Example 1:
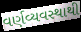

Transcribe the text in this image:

વર્ણવ્યવસ્થાથી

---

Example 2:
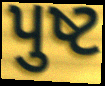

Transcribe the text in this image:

પુષ્ટ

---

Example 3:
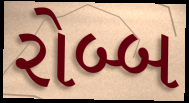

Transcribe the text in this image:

રોબ્બ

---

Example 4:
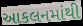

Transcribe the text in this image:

આકલનમાંથી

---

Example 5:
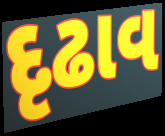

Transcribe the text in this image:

દૃઢાવ